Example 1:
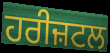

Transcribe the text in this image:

ਹਰੀਜ਼ਟਲ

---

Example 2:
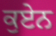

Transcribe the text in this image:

ਕੁਏਨ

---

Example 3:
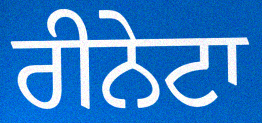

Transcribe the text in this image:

ਰੀਨੇਟਾ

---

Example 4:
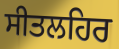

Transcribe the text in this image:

ਸੀਤਲਹਿਰ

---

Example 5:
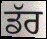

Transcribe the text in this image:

ਡੱਰ